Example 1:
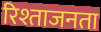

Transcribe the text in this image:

रिश्ताजनता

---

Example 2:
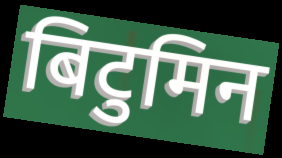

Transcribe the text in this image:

बिटुमिन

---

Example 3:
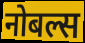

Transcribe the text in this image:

नोबल्स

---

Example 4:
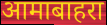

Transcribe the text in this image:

आमाबाहरा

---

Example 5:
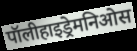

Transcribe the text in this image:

पॉलीहाइड्रेमनिओस